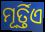
ମୂର୍ତ୍ତିଏ